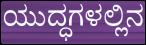
ಯುದ್ಧಗಳಲ್ಲಿನ